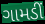
ગામડીં